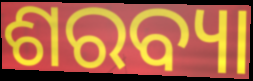
ଶରବ୍ୟା